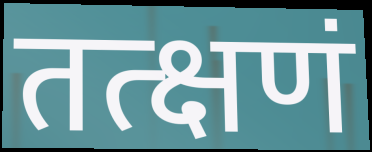
तत्क्षणं